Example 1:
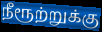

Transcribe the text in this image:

நீரூற்றுக்கு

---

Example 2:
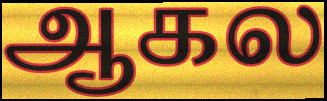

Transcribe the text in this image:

ஆகல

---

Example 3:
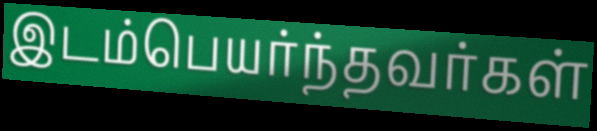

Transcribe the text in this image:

இடம்பெயர்ந்தவர்கள்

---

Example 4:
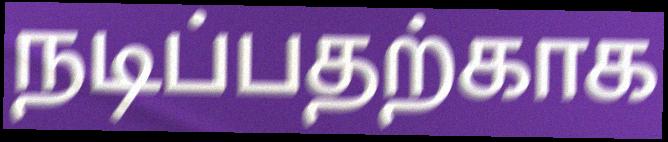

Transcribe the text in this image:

நடிப்பதற்காக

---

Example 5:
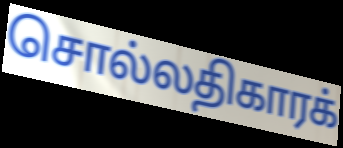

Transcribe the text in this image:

சொல்லதிகாரக்